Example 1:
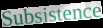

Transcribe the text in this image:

Subsistence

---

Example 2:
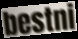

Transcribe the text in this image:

bestni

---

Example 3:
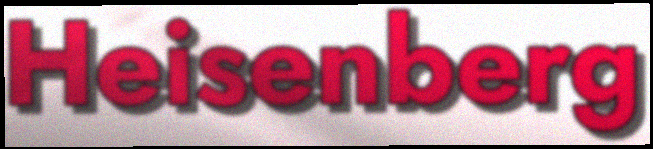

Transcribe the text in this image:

Heisenberg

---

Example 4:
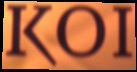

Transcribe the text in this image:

KOI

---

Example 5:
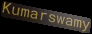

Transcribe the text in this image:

Kumarswamy